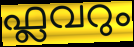
ഫ്ലവറും